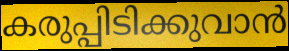
കരുപ്പിടിക്കുവാൻ